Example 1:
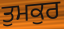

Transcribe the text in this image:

ਤੁਮਕੁਰ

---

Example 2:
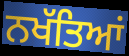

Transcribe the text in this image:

ਨਖੱਤਿਆਂ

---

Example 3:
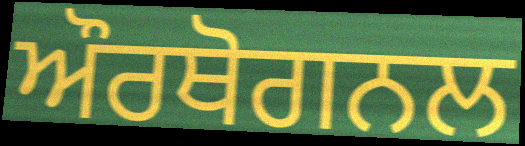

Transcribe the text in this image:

ਔਰਥੋਗਨਲ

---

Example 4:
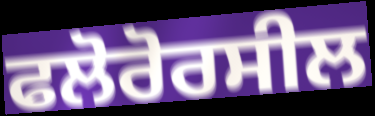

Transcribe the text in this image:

ਫਲੋਰੋਰਸੀਲ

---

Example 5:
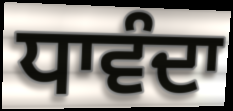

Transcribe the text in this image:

ਧਾਵੰਦਾ